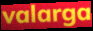
valarga